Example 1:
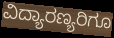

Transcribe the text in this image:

ವಿದ್ಯಾರಣ್ಯರಿಗೂ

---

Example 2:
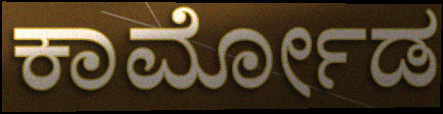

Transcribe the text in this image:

ಕಾರ್ಮೋಡ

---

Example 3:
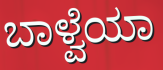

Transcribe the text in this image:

ಬಾಳ್ವೆಯಾ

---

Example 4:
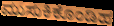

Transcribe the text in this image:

ಮುಸುಕಿಕೊಂಡಿಹ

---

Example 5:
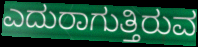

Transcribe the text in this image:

ಎದುರಾಗುತ್ತಿರುವ